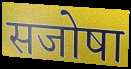
सजोषा